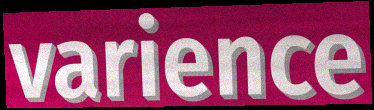
varience